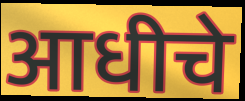
आधीचे